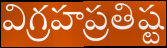
విగ్రహప్రతిష్ట